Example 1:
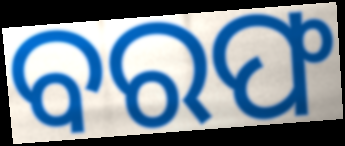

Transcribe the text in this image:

ବରଫ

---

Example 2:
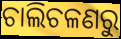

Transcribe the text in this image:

ଚାଲିଚଳଣରୁ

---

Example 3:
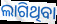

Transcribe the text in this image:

ଲାଗିଥିବା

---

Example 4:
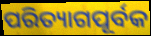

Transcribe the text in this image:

ପରିତ୍ୟାଗପୂର୍ବକ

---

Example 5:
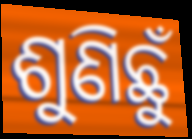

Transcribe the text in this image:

ଶୁଣିଛୁଁ